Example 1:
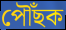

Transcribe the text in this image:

পৌঁছক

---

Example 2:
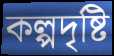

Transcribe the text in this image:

কল্পদৃষ্টি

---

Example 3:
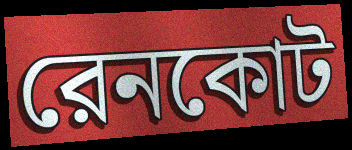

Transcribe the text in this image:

রেনকোট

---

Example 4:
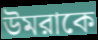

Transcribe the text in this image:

উমরাকে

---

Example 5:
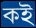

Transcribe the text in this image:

কই